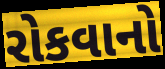
રોકવાનો